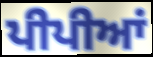
ਪੀਪੀਆਂ